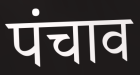
पंचाव